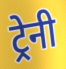
ट्रेनी